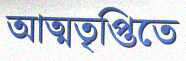
আত্মতৃপ্তিতে